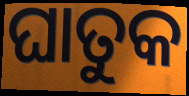
ଘାତୁକ